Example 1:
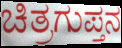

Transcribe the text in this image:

ಚಿತ್ರಗುಪ್ತನ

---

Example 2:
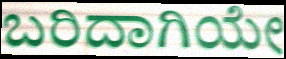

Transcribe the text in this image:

ಬರಿದಾಗಿಯೇ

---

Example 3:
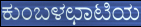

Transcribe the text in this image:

ಕುಂಬಳಛಾಟಿಯ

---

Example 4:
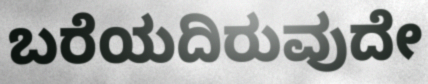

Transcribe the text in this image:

ಬರೆಯದಿರುವುದೇ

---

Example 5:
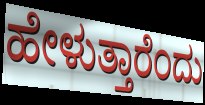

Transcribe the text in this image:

ಹೇಳುತ್ತಾರೆಂದು